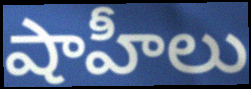
షాహీలు